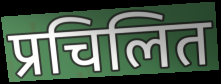
प्रचिलित